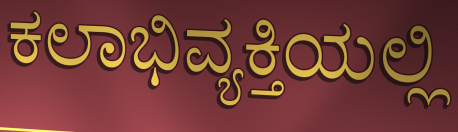
ಕಲಾಭಿವ್ಯಕ್ತಿಯಲ್ಲಿ